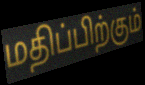
மதிப்பிற்கும்